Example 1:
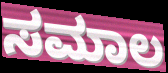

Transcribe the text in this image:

ಸಮಾಲ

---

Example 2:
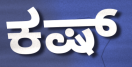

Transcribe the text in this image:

ಕಷ್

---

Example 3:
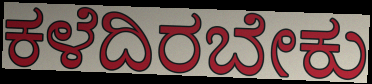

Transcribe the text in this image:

ಕಳೆದಿರಬೇಕು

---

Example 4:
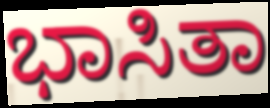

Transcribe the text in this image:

ಭಾಸಿತಾ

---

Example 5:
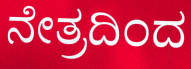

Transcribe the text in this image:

ನೇತ್ರದಿಂದ